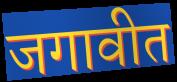
जगावीत